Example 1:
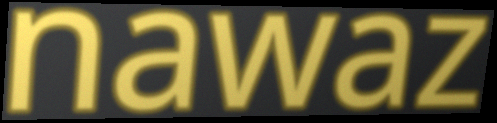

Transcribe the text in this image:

nawaz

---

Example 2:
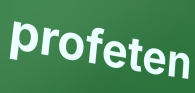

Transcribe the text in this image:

profeten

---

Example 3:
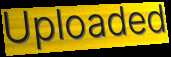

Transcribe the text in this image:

Uploaded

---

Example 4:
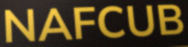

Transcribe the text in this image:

NAFCUB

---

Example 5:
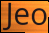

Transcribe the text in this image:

Jeo